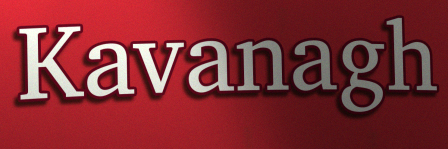
Kavanagh